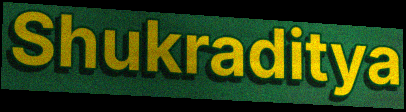
Shukraditya